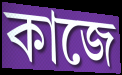
কাজে